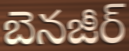
బెనజీర్